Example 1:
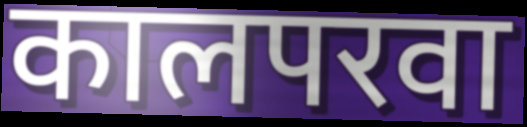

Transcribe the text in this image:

कालपरवा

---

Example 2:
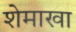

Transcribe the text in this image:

शेमाखा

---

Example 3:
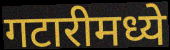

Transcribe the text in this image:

गटारीमध्ये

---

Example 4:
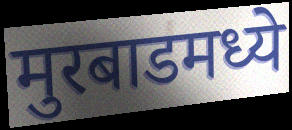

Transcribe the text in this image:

मुरबाडमध्ये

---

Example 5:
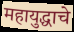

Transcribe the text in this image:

महायुद्धाचे